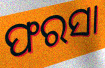
ଫରସା